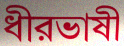
ধীরভাষী